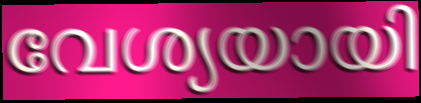
വേശ്യയായി